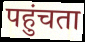
पहुंचता